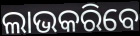
ଲାଭକରିବେ